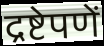
द्रष्टेपणें